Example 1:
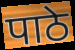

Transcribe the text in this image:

पाठे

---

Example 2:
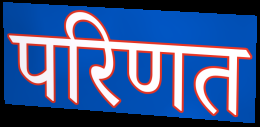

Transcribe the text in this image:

परिणत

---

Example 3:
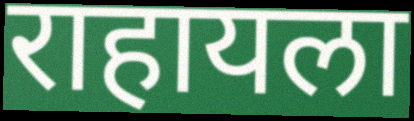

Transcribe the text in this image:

राहायला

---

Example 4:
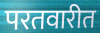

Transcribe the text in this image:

परतवारीत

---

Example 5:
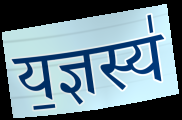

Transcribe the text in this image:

य॒ज्ञस्य॑